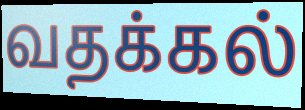
வதக்கல்